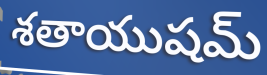
శతాయుషమ్